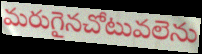
మరుగైనచోటువలెను